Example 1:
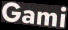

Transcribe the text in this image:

Gami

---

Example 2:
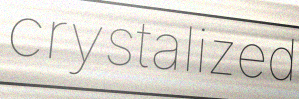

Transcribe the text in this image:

crystalized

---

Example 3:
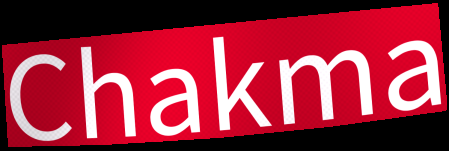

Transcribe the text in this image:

Chakma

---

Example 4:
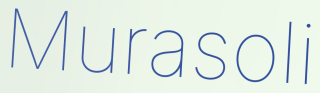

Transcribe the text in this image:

Murasoli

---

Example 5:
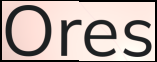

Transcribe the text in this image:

Ores